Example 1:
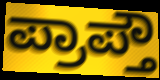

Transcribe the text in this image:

ಪ್ರಾಪ್ತೌ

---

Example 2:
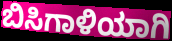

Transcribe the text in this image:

ಬಿಸಿಗಾಳಿಯಾಗಿ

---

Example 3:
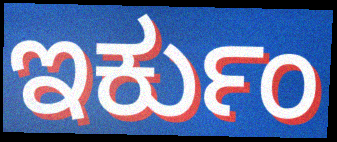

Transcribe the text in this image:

ಇರ್ಕುಂ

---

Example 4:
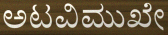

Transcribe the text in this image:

ಅಟವಿಮುಖೇ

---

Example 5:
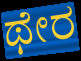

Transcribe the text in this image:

ಥೇರ